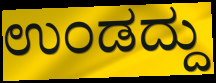
ಉಂಡದ್ದು